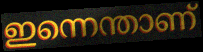
ഇന്നെന്താണ്